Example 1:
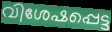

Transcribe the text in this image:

വിശേഷപ്പെട്ട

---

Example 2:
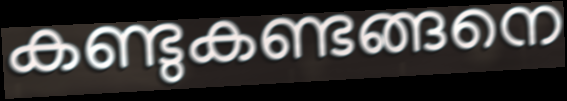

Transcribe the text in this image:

കണ്ടുകണ്ടങ്ങനെ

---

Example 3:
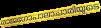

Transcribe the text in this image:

രാജഗോപാലാചാരിയുടെ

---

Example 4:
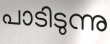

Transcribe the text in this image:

പാടിടുന്നു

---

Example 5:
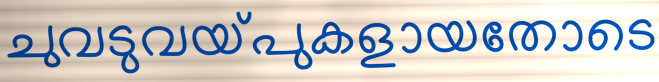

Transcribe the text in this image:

ചുവടുവയ്‌പുകളായതോടെ